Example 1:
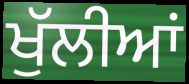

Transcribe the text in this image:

ਖੁੱਲੀਆਂ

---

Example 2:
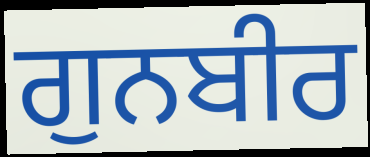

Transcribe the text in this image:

ਗੁਨਬੀਰ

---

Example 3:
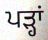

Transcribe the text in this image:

ਪੜ੍ਹਾਂ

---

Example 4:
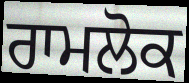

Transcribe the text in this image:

ਰਾਮਲੋਕ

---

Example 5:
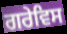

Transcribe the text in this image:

ਗਰੇਵਿਸ